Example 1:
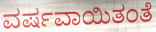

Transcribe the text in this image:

ವರ್ಷವಾಯಿತಂತೆ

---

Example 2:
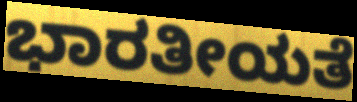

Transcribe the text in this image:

ಭಾರತೀಯತೆ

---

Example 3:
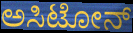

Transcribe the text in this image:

ಅಸಿಟೋನ್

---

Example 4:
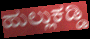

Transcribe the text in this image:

ಹುಲ್ಲುಕಡ್ಡಿ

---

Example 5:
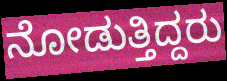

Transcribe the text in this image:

ನೋಡುತ್ತಿದ್ದರು